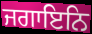
ਜਗਾਇਨਿ